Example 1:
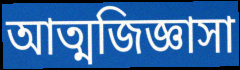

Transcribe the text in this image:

আত্মজিজ্ঞাসা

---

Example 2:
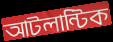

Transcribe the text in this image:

আটলান্টিক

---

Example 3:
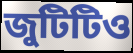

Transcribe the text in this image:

জুটিটিও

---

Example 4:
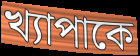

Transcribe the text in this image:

খ্যাপাকে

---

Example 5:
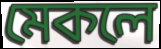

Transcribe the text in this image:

মেকলে